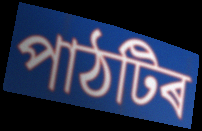
পাঠটিৰ